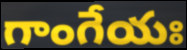
గాంగేయః